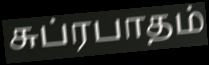
சுப்ரபாதம்